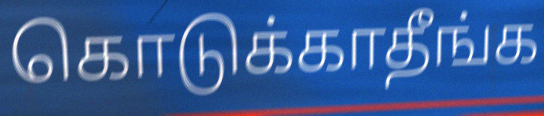
கொடுக்காதீங்க